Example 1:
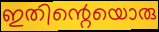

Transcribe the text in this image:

ഇതിന്റെയൊരു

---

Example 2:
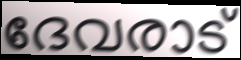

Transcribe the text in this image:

ദേവരാട്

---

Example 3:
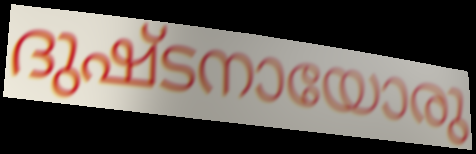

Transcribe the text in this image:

ദുഷ്ടനായോരു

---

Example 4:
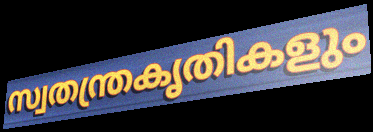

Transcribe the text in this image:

സ്വതന്ത്രകൃതികളും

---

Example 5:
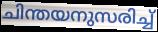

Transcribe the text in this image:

ചിന്തയനുസരിച്ച്